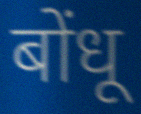
बोंधू